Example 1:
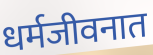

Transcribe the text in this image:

धर्मजीवनात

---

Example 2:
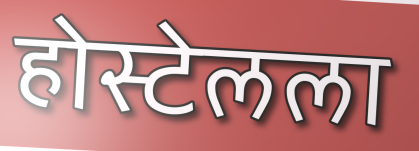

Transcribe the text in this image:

होस्टेलला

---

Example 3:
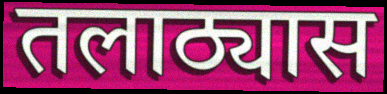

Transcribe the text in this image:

तलाठ्यास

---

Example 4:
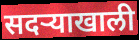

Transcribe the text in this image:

सदऱ्याखाली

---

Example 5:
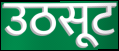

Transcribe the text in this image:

उठसूट